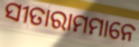
ସୀତାରାମମାନେ